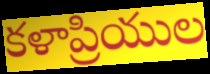
కళాప్రియుల